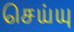
செய்யு